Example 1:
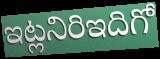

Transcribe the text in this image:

ఇట్లనిరిఇదిగో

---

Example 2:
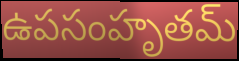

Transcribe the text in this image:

ఉపసంహృతమ్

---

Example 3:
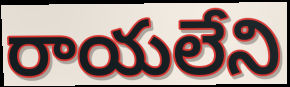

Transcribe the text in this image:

రాయలేని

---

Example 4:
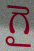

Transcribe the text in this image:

గై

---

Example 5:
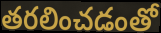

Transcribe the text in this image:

తరలించడంతో